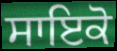
ਸਾਇਕੋ